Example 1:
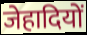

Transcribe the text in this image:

जेहादियों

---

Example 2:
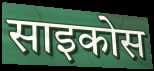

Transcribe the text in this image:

साइकोस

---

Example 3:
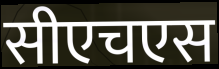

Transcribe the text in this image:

सीएचएस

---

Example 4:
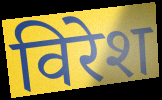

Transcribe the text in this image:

विरेश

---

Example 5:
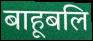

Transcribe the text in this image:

बाहूबलि